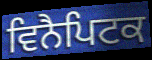
ਵਿਨੈਪਿਟਕ